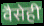
वैसेही